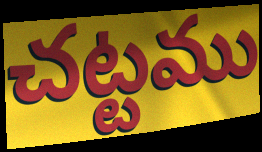
చట్టము